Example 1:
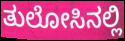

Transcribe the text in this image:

ತುಲೋಸಿನಲ್ಲಿ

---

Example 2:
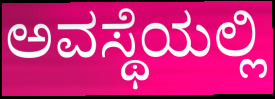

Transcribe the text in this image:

ಅವಸ್ಥೆಯಲ್ಲಿ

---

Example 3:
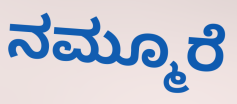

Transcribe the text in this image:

ನಮ್ಮೂರೆ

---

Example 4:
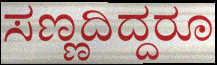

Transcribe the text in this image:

ಸಣ್ಣದಿದ್ದರೂ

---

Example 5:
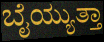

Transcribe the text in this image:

ಬೈಯ್ಯುತ್ತಾ